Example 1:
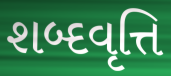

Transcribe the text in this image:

શબ્દવૃત્તિ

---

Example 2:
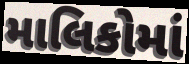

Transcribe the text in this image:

માલિકોમાં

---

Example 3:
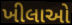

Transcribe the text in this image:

ખીલાઓ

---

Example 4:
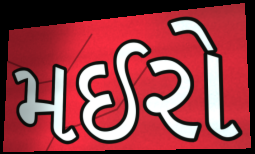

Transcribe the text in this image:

મઈરો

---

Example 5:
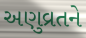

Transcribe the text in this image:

અણુવ્રતને